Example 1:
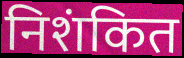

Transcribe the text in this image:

निशंकित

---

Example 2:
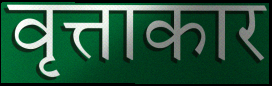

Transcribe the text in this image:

वृत्ताकार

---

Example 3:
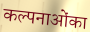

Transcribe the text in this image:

कल्पनाओंका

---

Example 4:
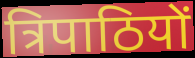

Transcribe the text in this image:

त्रिपाठियों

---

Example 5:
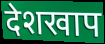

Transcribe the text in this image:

देशखाप